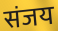
संजय